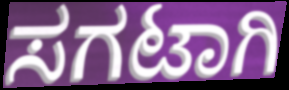
ಸಗಟಾಗಿ